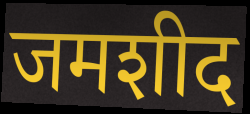
जमशीद